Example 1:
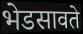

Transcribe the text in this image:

भेडसावते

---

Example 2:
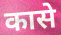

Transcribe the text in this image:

कासे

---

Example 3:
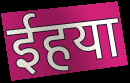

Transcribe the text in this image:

ईहया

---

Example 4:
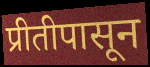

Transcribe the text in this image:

प्रीतीपासून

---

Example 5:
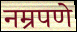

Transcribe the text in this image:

नम्रपणे